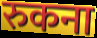
रुकना